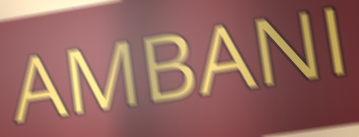
AMBANI